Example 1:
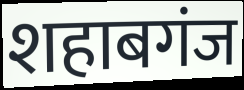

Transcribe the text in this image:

शहाबगंज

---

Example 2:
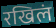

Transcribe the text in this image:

रखिलं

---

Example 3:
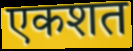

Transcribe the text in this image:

एकशत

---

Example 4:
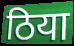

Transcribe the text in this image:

ठिया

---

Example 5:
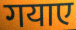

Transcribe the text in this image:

गयाए